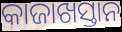
କାଜାଖସ୍ତାନ